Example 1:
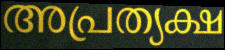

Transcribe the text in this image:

അപ്രത്യക്ഷ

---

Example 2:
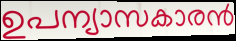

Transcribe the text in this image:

ഉപന്യാസകാരൻ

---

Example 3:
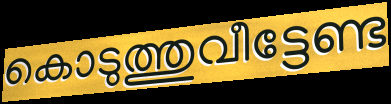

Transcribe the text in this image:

കൊടുത്തുവീട്ടേണ്ട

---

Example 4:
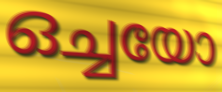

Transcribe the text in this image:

ഒച്ചയോ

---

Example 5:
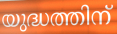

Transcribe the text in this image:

യുദ്ധത്തിന്